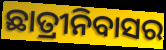
ଛାତ୍ରୀନିବାସର